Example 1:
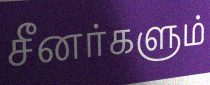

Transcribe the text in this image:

சீனர்களும்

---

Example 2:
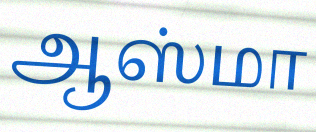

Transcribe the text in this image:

ஆஸ்மா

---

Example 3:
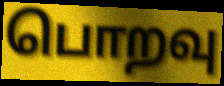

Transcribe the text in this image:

பொறவு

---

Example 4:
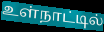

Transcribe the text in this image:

உள்நாட்டில்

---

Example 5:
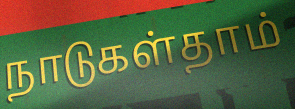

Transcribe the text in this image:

நாடுகள்தாம்